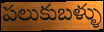
పలుకుబళ్ళు